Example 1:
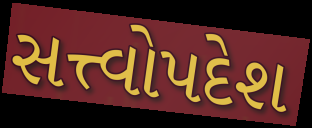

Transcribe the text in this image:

સત્ત્વોપદેશ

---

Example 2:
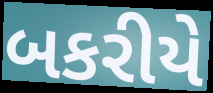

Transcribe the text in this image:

બકરીયે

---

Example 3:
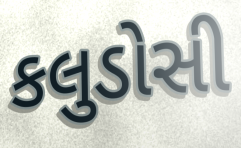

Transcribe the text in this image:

કલુડોસી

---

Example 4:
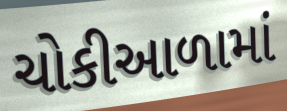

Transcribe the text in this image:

ચોકીઆળામાં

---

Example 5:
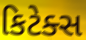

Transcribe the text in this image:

કિટેક્સ